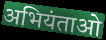
अभियंताओ